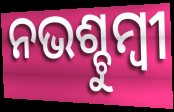
ନଭଶ୍ଚୁମ୍ବୀ